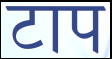
टाप